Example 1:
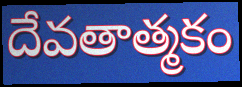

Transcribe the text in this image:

దేవతాత్మకం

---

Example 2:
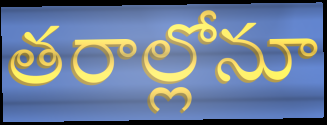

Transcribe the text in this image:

తరాల్లోనూ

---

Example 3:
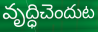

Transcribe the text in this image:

వృద్ధిచెందుట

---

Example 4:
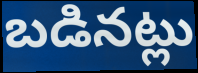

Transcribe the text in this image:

బడినట్లు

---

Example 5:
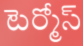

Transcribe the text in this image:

టెర్మోస్